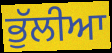
ਭੁੱਲੀਆ